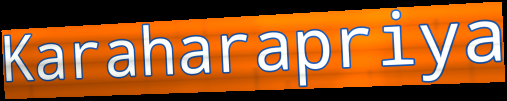
Karaharapriya